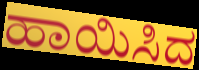
ಹಾಯಿಸಿದ